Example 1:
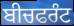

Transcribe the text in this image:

ਬੀਚਫਰੰਟ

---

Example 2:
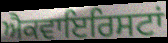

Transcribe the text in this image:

ਐਕਵਾਇਰਿਸਟਾਂ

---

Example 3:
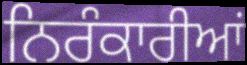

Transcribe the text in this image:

ਨਿਰੰਕਾਰੀਆਂ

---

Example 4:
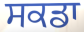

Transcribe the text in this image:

ਸਕਡਾ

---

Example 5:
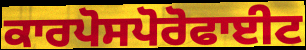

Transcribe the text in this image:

ਕਾਰਪੋਸਪੋਰੋਫਾਈਟ